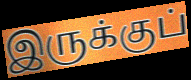
இருக்குப்